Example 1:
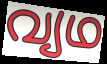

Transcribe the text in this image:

വ്യഥ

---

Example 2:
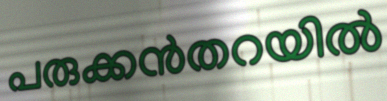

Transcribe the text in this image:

പരുക്കൻതറയിൽ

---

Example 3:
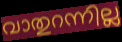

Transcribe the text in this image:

വാതുറന്നില്ല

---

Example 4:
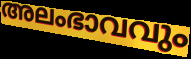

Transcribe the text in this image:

അലംഭാവവും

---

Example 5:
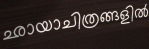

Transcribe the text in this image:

ഛായാചിത്രങ്ങളിൽ